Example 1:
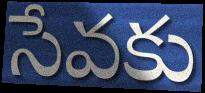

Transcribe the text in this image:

సేవకు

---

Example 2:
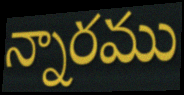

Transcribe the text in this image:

న్నారము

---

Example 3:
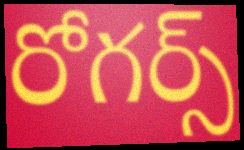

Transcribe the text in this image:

రోగర్స్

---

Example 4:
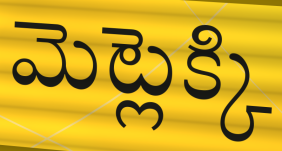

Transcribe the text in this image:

మెట్లెక్కి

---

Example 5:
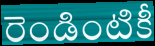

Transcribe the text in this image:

రెండింటికీ